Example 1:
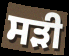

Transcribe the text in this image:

ਸੜੀ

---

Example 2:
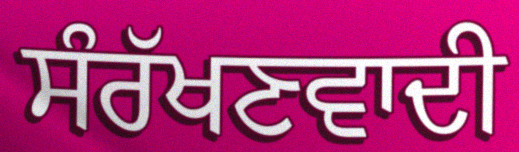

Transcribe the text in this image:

ਸੰਰੱਖਣਵਾਦੀ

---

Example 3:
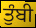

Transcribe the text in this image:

ਤੁੰਬੀ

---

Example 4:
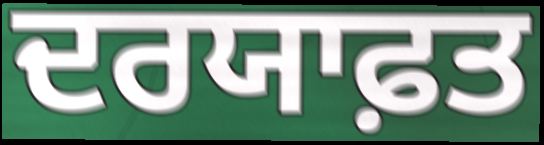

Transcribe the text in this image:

ਦਰਯਾਫ਼ਤ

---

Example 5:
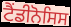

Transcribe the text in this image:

ਟੈਂਡੀਨੋਸਿਸ